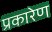
प्रकारेण